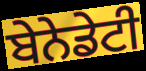
ਬੇਨੇਡੇਟੀ